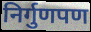
निर्गुणपण